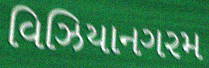
વિઝિયાનગરમ